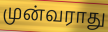
முன்வராது